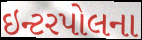
ઇન્ટરપોલના